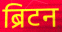
ब्रिटन